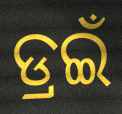
ଡ୍ରଇଁ